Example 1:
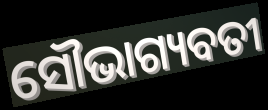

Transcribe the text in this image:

ସୌଭାଗ୍ୟବତୀ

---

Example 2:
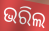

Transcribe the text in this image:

ଭରିଲ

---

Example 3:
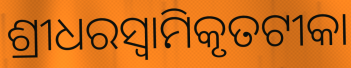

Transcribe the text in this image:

ଶ୍ରୀଧରସ୍ଵାମିକୃତଟୀକା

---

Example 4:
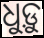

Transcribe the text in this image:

ଧୁଡ଼ୁ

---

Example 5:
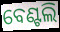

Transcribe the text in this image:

ବେଣ୍ଟଲି